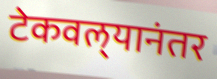
टेकवल्यानंतर